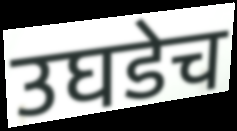
उघडेच